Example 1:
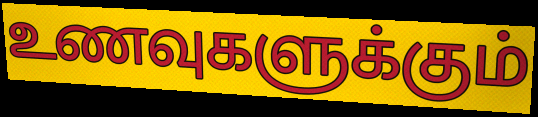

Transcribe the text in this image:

உணவுகளுக்கும்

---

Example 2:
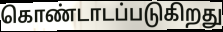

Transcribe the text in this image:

கொண்டாடப்படுகிறது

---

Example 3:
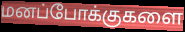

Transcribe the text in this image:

மனப்போக்குகளை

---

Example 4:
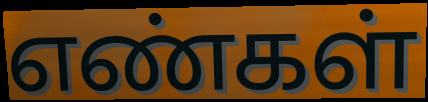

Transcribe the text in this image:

எண்கள்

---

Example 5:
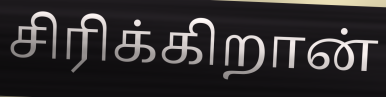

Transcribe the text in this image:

சிரிக்கிறான்